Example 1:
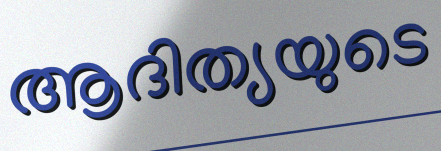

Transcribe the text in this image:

ആദിത്യയുടെ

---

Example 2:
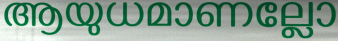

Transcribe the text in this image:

ആയുധമാണല്ലോ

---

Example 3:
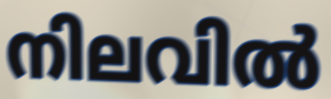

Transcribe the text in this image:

നിലവിൽ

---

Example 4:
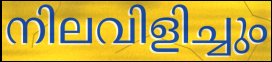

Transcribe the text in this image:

നിലവിളിച്ചും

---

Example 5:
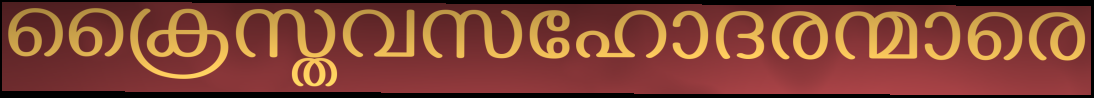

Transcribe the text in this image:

ക്രൈസ്തവസഹോദരന്മാരെ